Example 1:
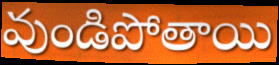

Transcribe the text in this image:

వుండిపోతాయి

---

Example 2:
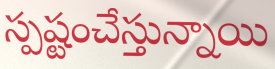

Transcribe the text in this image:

స్పష్టంచేస్తున్నాయి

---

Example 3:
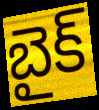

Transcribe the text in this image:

బైక్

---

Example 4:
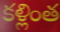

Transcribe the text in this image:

కళ్లింత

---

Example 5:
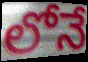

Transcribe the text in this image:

లోనే